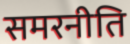
समरनीति